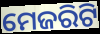
ମେଜରିଟି